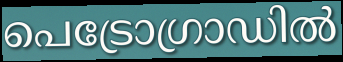
പെട്രോഗ്രാഡിൽ